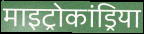
माइट्रोकांड्रिया